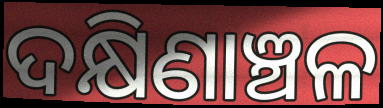
ଦକ୍ଷିଣାଞ୍ଚଳ